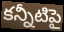
కన్నీటిపై